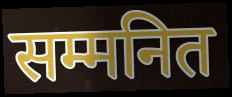
सम्मनित